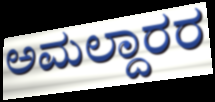
ಅಮಲ್ದಾರರ